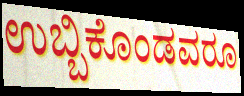
ಉಬ್ಬಿಕೊಂಡವರೂ